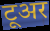
टूअर